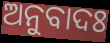
ଅନୁବାଦଃ